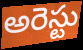
అరెస్టు